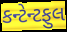
કન્ટેન્ટફુલ